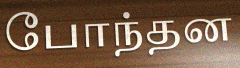
போந்தன